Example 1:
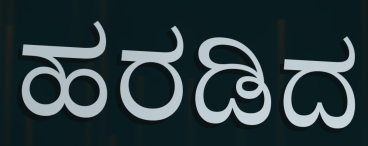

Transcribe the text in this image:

ಹರಡಿದ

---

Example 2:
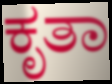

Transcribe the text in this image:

ಕೃತಾ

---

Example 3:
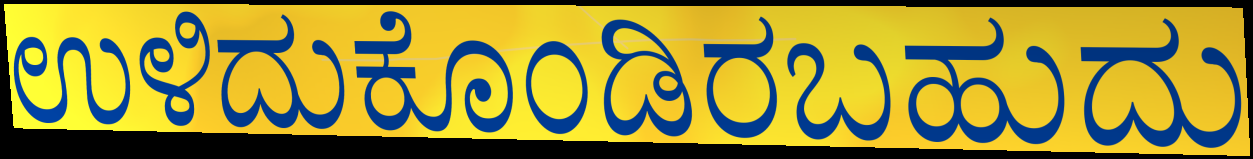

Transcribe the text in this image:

ಉಳಿದುಕೊಂಡಿರಬಹುದು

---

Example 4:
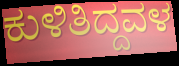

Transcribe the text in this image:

ಕುಳಿತಿದ್ದವಳ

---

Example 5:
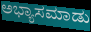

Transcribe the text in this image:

ಅಭ್ಯಾಸಮಾಡು